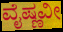
ವೈಷ್ಣವೀ